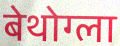
बेथोग्ला